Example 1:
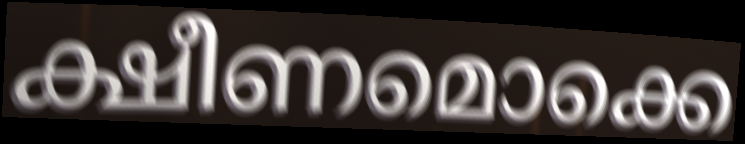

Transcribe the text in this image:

ക്ഷീണമൊക്കെ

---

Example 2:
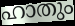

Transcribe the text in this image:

ഹാതും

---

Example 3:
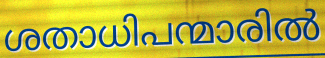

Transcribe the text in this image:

ശതാധിപന്മാരിൽ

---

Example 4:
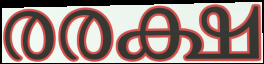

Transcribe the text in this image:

രരക്ഷ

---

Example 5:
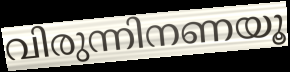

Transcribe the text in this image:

വിരുന്നിനണയൂ